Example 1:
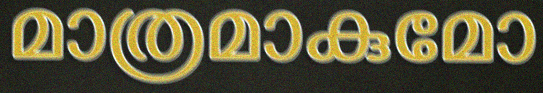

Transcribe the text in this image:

മാത്രമാകുമോ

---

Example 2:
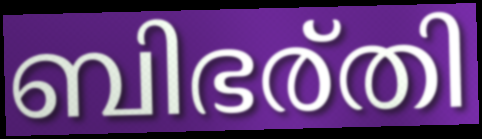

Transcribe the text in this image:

ബിഭര്തി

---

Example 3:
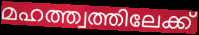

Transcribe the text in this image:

മഹത്ത്വത്തിലേക്ക്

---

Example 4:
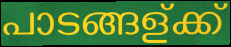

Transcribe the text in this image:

പാടങ്ങള്ക്ക്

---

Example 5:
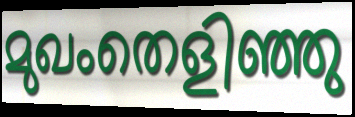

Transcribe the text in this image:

മുഖംതെളിഞ്ഞു